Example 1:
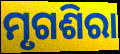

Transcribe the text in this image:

ମୃଗଶିରା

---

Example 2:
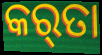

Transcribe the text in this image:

କର୍‌ତା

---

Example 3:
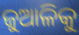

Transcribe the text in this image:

ଜୁଆଳିକୁ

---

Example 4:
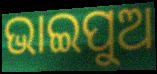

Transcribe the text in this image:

ଭାଇପୁଅ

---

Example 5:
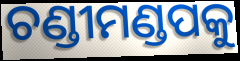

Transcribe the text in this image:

ଚଣ୍ଡୀମଣ୍ଡପକୁ